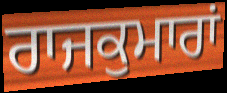
ਰਾਜਕੁਮਾਰਾਂ